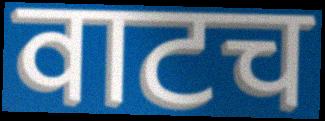
वाटच